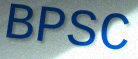
BPSC